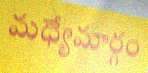
మధ్యేమార్గం